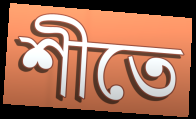
শীতে